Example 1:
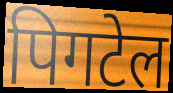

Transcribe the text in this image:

पिगटेल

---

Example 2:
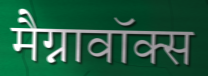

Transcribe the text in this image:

मैग्नावॉक्स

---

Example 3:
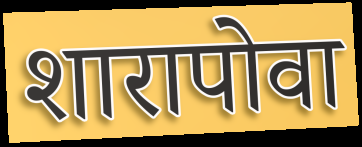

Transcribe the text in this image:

शारापोवा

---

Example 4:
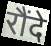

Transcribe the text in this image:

रौंदे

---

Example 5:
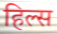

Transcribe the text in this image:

हिल्स